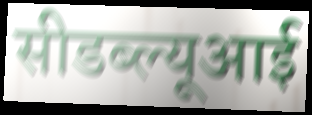
सीडब्ल्यूआई